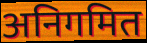
अनिगमित